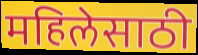
महिलेसाठी